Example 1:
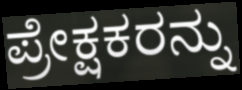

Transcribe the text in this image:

ಪ್ರೇಕ್ಷಕರನ್ನು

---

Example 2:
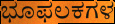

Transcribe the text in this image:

ಭೂಫಲಕಗಳ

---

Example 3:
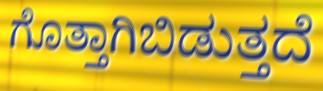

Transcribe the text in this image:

ಗೊತ್ತಾಗಿಬಿಡುತ್ತದೆ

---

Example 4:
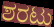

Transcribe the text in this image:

ಶರಟು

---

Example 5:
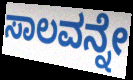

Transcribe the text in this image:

ಸಾಲವನ್ನೇ